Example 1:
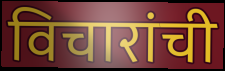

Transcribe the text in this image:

विचारांची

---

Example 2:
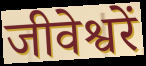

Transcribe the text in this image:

जीवेश्वरें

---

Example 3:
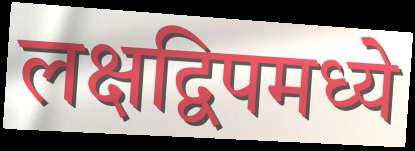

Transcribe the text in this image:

लक्षद्विपमध्ये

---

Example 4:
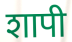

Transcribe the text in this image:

शापी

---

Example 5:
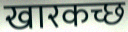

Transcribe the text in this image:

खारकच्छ